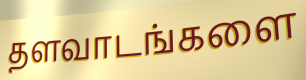
தளவாடங்களை